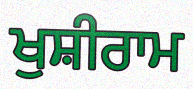
ਖੁਸ਼ੀਰਾਮ